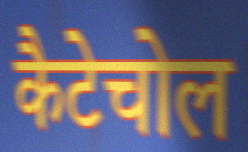
कैटेचोल